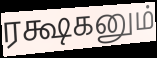
ரக்ஷகனும்